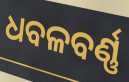
ଧବଳବର୍ଣ୍ଣ